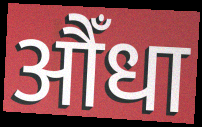
औँधा